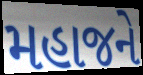
મહાજને